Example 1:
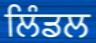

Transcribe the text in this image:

ਲਿੰਡਲ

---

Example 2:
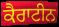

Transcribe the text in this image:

ਕੈਰਾਟੀਨ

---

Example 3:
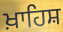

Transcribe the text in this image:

ਖ਼ਾਹਿਸ਼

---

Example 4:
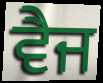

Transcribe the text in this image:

ਵੈਜ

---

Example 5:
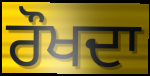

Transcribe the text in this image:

ਰੌਖਦਾ